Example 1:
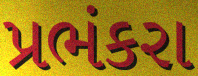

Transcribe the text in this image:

પ્રભંકરા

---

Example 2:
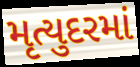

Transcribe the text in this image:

મૃત્યુદરમાં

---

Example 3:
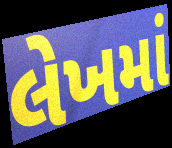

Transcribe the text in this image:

લેખમાં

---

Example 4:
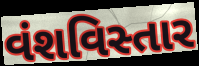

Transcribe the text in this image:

વંશવિસ્તાર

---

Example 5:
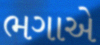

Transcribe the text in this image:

ભગાએ